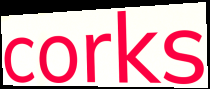
corks